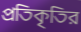
প্রতিকৃতির